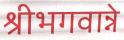
श्रीभगवान्ने